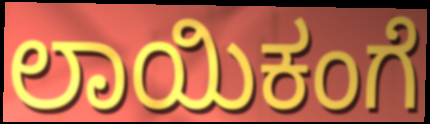
ಲಾಯಿಕಂಗೆ